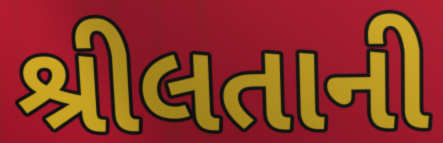
શ્રીલતાની